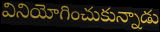
వినియోగించుకున్నాడు